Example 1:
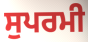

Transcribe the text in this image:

ਸੁਪਰਮੀ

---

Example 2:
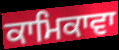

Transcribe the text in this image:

ਕਾਮਿਕਾਵਾ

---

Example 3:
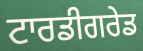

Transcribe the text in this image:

ਟਾਰਡੀਗਰੇਡ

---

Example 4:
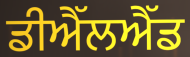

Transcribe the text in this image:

ਡੀਐੱਲਐੱਡ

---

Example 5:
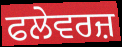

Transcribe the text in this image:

ਫਲੇਵਰਜ਼